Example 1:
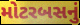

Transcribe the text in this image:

મોટરબસનું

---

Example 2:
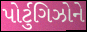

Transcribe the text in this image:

પોર્ટુગિઝોને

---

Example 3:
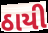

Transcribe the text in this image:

ઠાયી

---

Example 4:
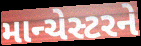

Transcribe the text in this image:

માન્ચેસ્ટરને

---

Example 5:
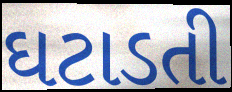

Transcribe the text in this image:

ઘટાડતી